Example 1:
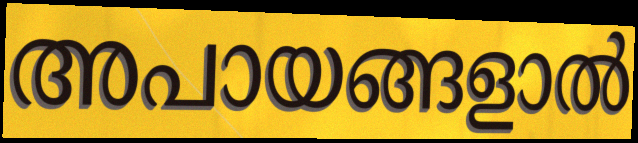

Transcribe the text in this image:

അപായങ്ങളാൽ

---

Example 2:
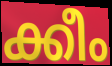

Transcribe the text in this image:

ക്കീം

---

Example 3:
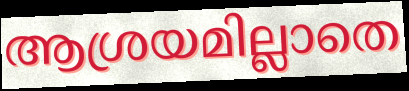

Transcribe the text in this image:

ആശ്രയമില്ലാതെ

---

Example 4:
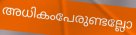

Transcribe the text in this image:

അധികംപേരുണ്ടല്ലോ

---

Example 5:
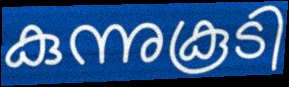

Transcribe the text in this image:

കുന്നുകൂടി